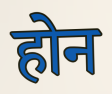
होन